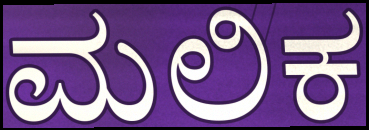
ಮಲಿಕ